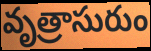
వృత్రాసురుం